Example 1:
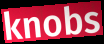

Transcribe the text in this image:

knobs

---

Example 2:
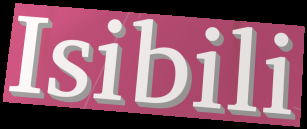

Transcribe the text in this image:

Isibili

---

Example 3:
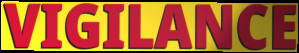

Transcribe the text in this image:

VIGILANCE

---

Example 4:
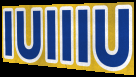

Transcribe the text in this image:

IUIIIU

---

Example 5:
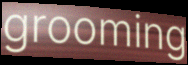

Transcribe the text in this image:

grooming